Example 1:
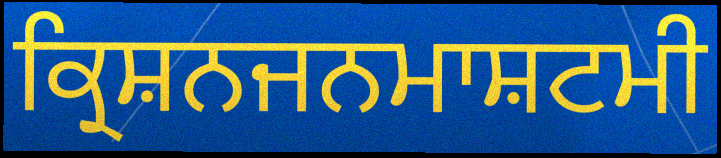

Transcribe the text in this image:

ਕ੍ਰਿਸ਼ਨਜਨਮਾਸ਼ਟਮੀ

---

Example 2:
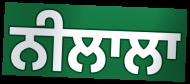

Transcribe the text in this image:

ਨੀਲਾਲਾ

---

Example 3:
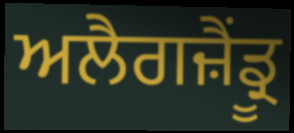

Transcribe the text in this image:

ਅਲੈਗਜ਼ੈਂਡ੍ਰੂ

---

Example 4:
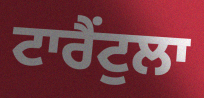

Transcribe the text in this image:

ਟਾਰੈਂਟੁਲਾ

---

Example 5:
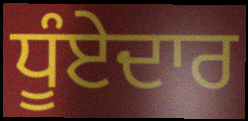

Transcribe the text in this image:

ਧੂੰਏਦਾਰ